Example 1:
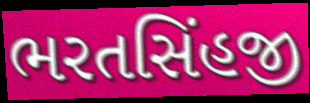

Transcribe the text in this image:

ભરતસિંહજી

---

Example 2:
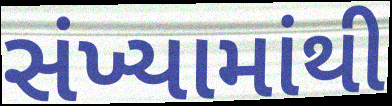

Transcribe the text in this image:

સંખ્યામાંથી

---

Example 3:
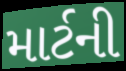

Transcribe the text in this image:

માર્ટની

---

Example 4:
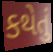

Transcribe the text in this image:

કથેતું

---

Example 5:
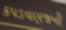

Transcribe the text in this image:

કપડવણજની